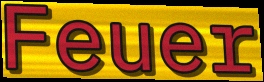
Feuer